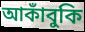
আকাঁবুকি